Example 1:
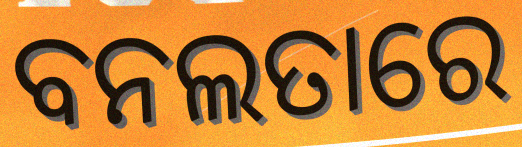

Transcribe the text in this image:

ବନଲତାରେ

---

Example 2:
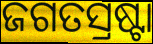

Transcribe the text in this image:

ଜଗତସ୍ରଷ୍ଟା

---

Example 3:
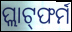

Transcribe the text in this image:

ପ୍ଲାଟ୍‌ଫର୍ମ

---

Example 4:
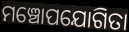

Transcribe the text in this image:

ମଞ୍ଚୋପଯୋଗିତା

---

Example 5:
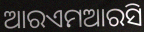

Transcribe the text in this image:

ଆରଏମଆରସି